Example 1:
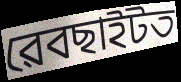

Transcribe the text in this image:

ৱেবছাইটত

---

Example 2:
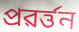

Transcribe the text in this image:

প্ৰৱৰ্ত্তন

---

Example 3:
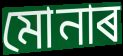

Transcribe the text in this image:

মোনাৰ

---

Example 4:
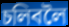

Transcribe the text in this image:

চলিবলৈ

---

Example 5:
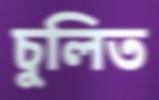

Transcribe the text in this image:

চুলিত